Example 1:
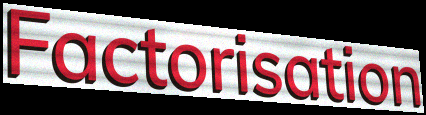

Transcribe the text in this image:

Factorisation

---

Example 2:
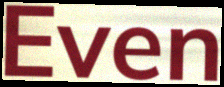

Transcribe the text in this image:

Even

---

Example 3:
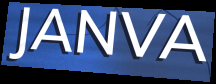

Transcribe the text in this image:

JANVA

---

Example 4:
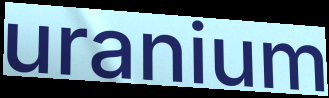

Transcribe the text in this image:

uranium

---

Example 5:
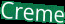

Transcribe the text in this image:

Creme